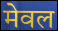
मेवल